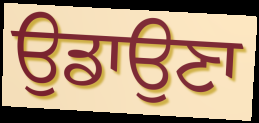
ਉਡਾਉਣਾ